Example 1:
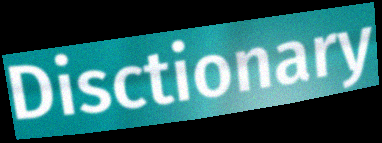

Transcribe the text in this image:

Disctionary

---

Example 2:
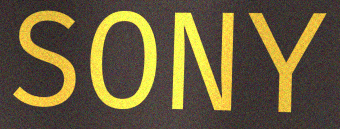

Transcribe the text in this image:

SONY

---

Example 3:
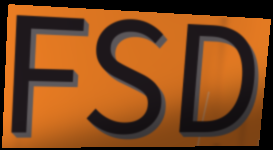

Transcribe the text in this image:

FSD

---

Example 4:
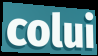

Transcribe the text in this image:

colui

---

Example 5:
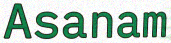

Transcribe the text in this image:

Asanam